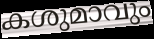
കശുമാവും